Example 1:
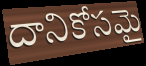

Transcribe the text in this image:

దానికోసమై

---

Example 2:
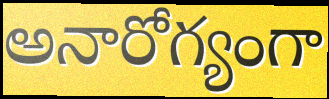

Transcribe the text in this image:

అనారోగ్యంగా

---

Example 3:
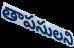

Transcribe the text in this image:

తాపసులని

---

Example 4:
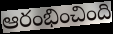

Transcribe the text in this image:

ఆరంభించింది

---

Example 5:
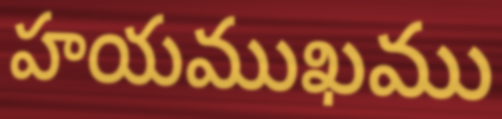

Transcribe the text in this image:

హయముఖము